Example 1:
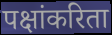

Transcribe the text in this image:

पक्षांकरिता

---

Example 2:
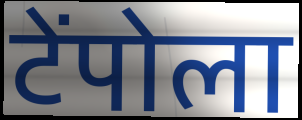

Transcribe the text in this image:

टेंपोला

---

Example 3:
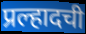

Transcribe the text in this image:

प्रल्हादची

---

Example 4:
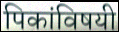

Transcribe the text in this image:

पिकांविषयी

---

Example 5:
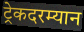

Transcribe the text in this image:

ट्रेकदरम्यान